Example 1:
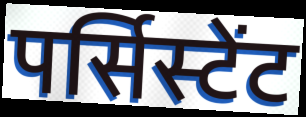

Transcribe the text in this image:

पर्सिस्टेंट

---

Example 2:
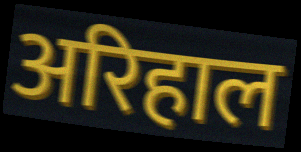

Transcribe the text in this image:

अरिहाल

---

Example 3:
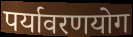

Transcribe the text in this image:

पर्यावरणयोग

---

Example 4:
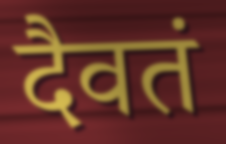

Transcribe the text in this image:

दैवतं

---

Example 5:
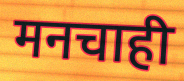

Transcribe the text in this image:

मनचाही